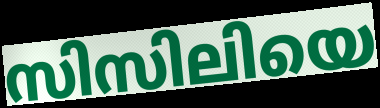
സിസിലിയെ